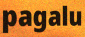
pagalu